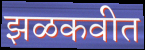
झळकवीत